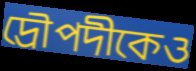
দ্রৌপদীকেও